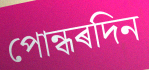
পোন্ধৰদিন